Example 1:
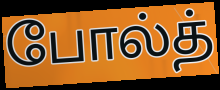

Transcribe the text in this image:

போல்த்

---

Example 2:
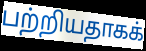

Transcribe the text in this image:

பற்றியதாகக்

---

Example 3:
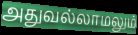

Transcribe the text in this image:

அதுவல்லாமலும்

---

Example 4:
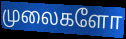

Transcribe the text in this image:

முலைகளோ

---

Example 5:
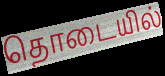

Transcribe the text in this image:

தொடையில்